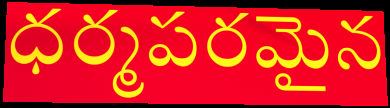
ధర్మపరమైన